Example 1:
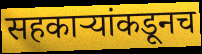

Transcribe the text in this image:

सहकार्‍यांकडूनच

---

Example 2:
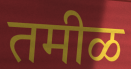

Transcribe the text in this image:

तमीळ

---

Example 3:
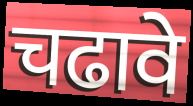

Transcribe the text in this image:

चढावे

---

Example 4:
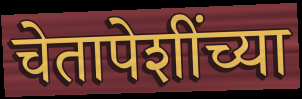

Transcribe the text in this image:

चेतापेशींच्या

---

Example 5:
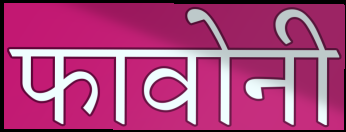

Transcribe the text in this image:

फावोनी